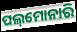
ପଲ୍‌ମୋନାରି